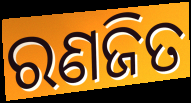
ରଣଜିତ